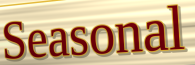
Seasonal